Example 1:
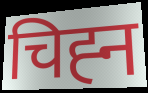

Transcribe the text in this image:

चिह्‍न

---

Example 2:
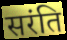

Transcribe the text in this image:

सरंति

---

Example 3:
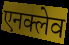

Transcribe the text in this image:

एनक्‍लेव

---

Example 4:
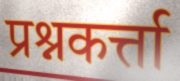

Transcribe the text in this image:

प्रश्नकर्त्ता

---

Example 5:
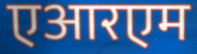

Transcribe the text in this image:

एआरएम